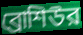
ব্রোশিউর